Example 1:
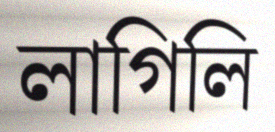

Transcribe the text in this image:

লাগিলি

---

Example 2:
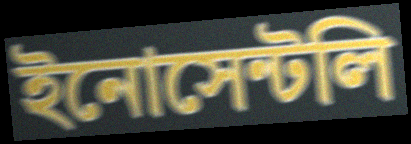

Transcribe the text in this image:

ইনোসেন্টলি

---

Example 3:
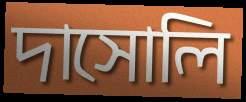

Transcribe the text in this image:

দাসোলি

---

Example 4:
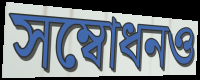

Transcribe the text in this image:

সম্বোধনও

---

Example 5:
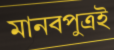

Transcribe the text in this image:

মানবপুত্রই